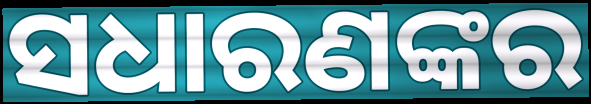
ସଧାରଣଙ୍କର